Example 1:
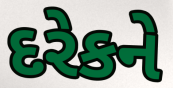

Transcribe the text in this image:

દરેકને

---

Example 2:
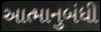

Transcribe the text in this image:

આત્માનુબંધી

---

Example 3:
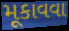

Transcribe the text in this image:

મૂકાવવા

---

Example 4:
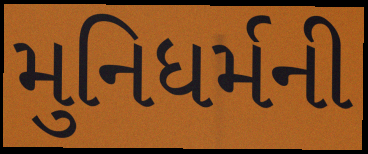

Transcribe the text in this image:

મુનિધર્મની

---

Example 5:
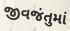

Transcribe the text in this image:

જીવજંતુમાં